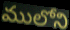
ములోని